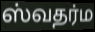
ஸ்வதர்ம